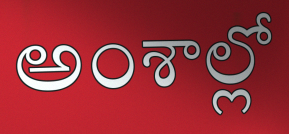
అంశాల్లో